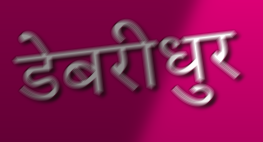
डेबरीधुर